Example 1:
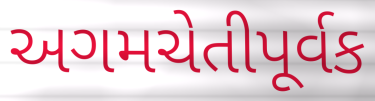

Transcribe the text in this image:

અગમચેતીપૂર્વક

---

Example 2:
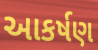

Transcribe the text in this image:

આકર્ષણ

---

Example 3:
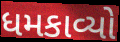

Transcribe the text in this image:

ધમકાવ્યો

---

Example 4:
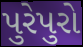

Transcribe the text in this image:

પુરેપુરો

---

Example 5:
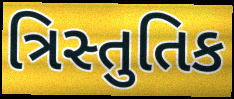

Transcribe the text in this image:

ત્રિસ્તુતિક